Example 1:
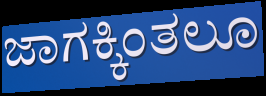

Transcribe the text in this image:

ಜಾಗಕ್ಕಿಂತಲೂ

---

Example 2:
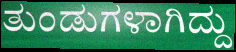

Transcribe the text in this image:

ತುಂಡುಗಳಾಗಿದ್ದು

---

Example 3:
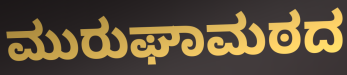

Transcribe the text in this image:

ಮುರುಘಾಮಠದ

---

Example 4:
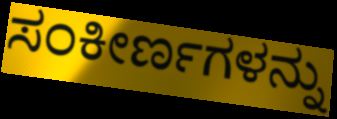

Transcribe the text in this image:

ಸಂಕೀರ್ಣಗಳನ್ನು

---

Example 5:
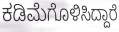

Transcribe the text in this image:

ಕಡಿಮೆಗೊಳಿಸಿದ್ದಾರೆ